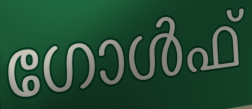
ഗോൾഫ്